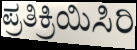
ಪ್ರತಿಕ್ರಿಯಿಸಿರಿ